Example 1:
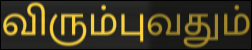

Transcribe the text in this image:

விரும்புவதும்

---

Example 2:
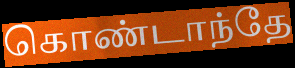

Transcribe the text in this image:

கொண்டாந்தே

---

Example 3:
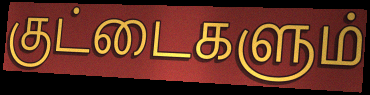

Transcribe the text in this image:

குட்டைகளும்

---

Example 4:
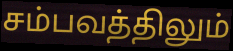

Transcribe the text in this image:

சம்பவத்திலும்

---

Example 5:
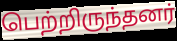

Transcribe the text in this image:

பெற்றிருந்தனர்